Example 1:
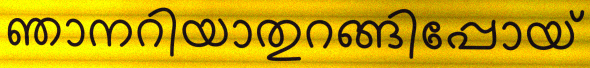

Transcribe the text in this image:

ഞാനറിയാതുറങ്ങിപ്പോയ്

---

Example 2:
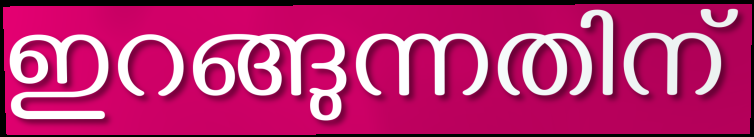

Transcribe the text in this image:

ഇറങ്ങുന്നതിന്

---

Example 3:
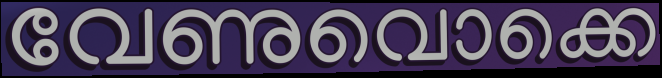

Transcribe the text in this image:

വേണുവൊക്കെ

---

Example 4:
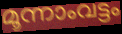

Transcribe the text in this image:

മൂന്നാംവട്ടം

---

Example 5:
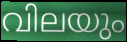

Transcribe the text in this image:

വിലയും